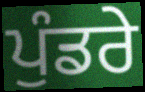
ਪੁੰਡਰੇ